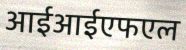
आईआईएफएल